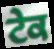
ਟੇਕ